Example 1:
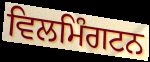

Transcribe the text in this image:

ਵਿਲਮਿੰਗਟਨ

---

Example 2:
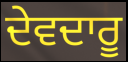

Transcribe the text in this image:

ਦੇਵਦਾਰੂ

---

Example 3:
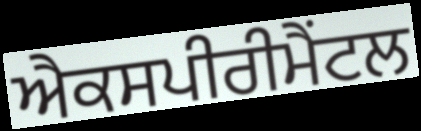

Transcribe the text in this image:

ਐਕਸਪੀਰੀਮੈਂਟਲ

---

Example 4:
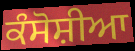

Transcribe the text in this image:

ਕੰਸੋਸ਼ੀਆ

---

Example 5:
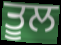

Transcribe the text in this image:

ਤੂਲ